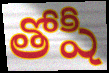
తోషీ